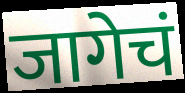
जागेचं